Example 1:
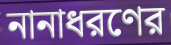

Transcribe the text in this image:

নানাধরণের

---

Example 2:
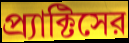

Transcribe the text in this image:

প্র্যাক্টিসের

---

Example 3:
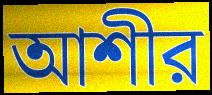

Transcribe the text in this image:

আশীর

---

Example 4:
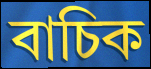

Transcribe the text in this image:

বাচিক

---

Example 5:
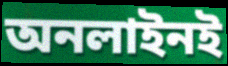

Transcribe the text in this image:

অনলাইনই